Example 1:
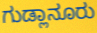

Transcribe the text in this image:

ಗುಡ್ಲಾನೂರು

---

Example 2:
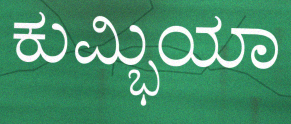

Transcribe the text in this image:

ಕುಮ್ಭಿಯಾ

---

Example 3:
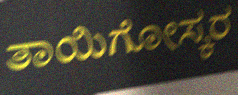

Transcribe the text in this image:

ತಾಯಿಗೋಸ್ಕರ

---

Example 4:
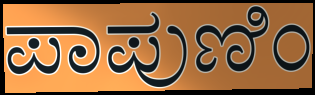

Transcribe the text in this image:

ಪಾಪುಣಿಂ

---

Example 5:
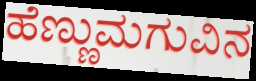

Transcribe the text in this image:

ಹೆಣ್ಣುಮಗುವಿನ